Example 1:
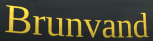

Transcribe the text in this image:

Brunvand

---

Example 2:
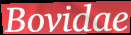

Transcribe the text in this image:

Bovidae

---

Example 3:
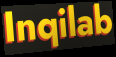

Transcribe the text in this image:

Inqilab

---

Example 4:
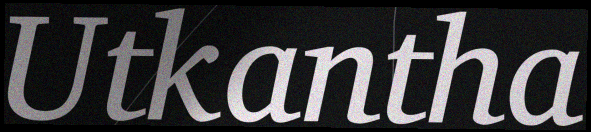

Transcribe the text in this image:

Utkantha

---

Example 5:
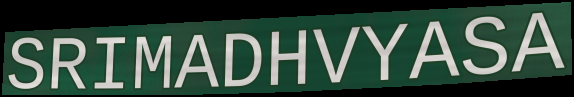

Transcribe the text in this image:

SRIMADHVYASA